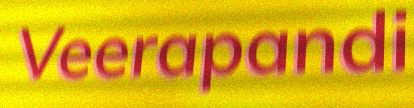
Veerapandi